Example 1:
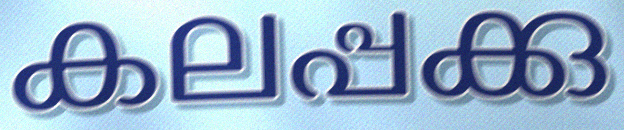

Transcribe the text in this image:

കലപ്പക്കു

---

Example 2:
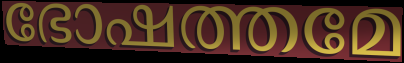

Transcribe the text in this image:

ഭോഷത്തമേ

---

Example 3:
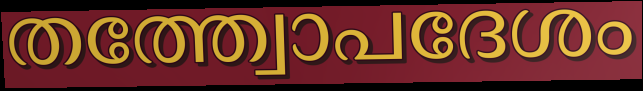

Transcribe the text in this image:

തത്ത്വോപദേശം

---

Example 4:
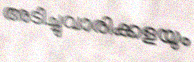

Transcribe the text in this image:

അടിച്ചുവാരിക്കളയും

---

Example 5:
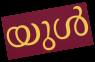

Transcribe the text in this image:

യുൾ